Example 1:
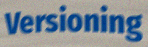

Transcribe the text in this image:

Versioning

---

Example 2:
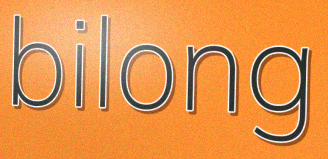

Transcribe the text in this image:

bilong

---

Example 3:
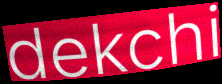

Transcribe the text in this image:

dekchi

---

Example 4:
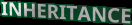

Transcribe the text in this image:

INHERITANCE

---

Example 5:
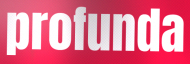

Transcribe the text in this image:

profunda